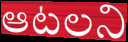
ఆటలని